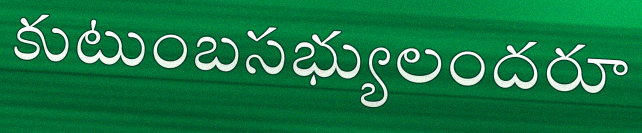
కుటుంబసభ్యులందరూ